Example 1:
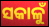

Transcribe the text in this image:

ସକାଳୁଁ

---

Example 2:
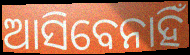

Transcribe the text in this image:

ଆସିବେନାହିଁ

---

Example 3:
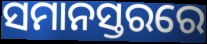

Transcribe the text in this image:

ସମାନସ୍ତରରେ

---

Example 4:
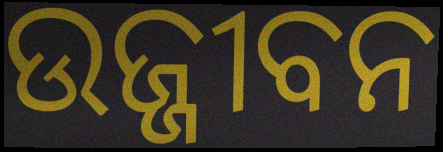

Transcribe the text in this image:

ଉଜ୍ଜୀବନ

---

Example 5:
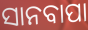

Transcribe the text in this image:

ସାନବାପା